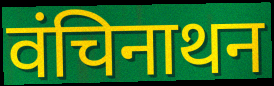
वंचिनाथन